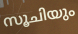
സൂചിയും